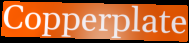
Copperplate